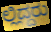
ಲ್ಲಿದ್ದರು